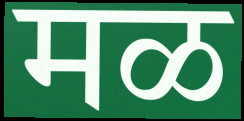
मळ